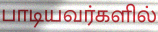
பாடியவர்களில்